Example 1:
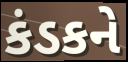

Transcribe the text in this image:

કંડકને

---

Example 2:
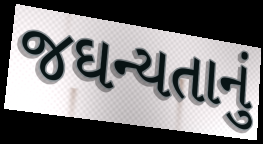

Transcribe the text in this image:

જઘન્યતાનું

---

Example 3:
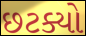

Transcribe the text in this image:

છટક્યો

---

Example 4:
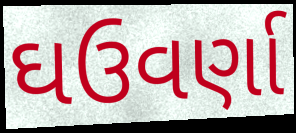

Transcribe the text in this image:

ઘઉવર્ણા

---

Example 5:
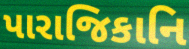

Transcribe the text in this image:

પારાજિકાનિ